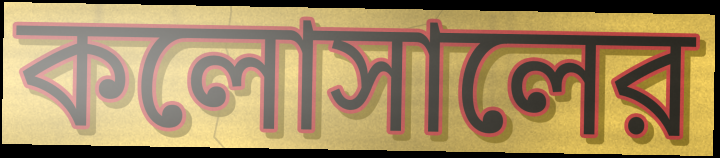
কলোসালের